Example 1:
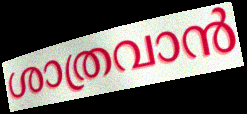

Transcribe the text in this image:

ശാത്രവാൻ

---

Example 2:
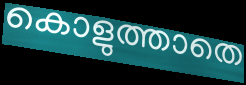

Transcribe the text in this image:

കൊളുത്താതെ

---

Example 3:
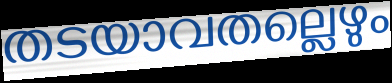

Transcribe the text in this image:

തടയാവതല്ലെഴും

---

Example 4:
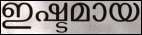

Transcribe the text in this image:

ഇഷ്ടമായ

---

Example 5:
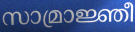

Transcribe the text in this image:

സാമ്രാജ്ഞീ